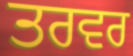
ਤਰਵਰ